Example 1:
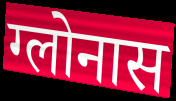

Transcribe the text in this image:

ग्लोनास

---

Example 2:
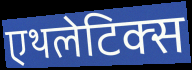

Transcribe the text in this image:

एथलेटिक्‍स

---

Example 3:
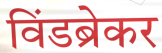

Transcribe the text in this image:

विंडब्रेकर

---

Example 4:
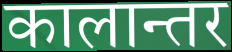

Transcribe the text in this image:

कालान्तर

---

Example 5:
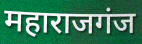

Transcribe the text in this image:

महाराजगंज